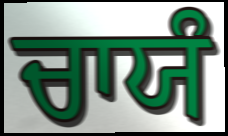
ਚਾਯੰ